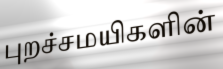
புறச்சமயிகளின்